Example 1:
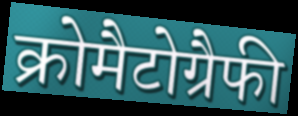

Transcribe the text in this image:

क्रोमैटोग्रैफी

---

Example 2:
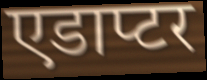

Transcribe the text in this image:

एडाप्टर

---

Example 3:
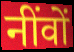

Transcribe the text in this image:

नींवों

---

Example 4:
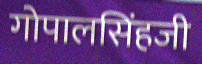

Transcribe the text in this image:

गोपालसिंहजी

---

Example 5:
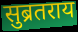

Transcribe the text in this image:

सुब्रतराय